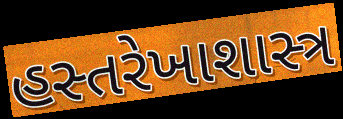
હસ્તરેખાશાસ્ત્ર